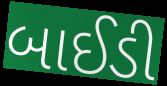
બાઈડી